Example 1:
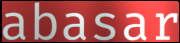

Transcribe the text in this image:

abasar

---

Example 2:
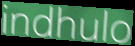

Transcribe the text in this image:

indhulo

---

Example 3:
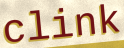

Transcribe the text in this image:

clink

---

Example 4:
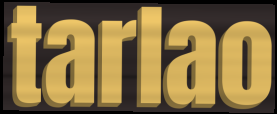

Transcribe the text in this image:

tarlao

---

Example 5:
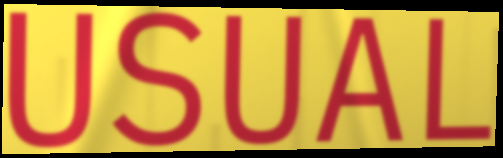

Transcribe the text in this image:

USUAL